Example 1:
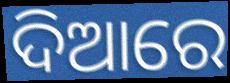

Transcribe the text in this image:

ଦିଆରେ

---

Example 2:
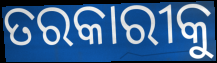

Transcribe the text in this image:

ତରକାରୀକୁ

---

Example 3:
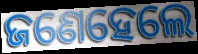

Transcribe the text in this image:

ଜଣେହେଲେ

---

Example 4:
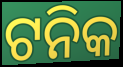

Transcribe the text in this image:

ଟନିକ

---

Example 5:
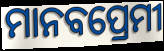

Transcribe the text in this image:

ମାନବପ୍ରେମୀ